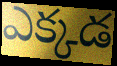
ఎక్కడ